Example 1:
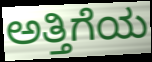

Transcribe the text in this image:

ಅತ್ತಿಗೆಯ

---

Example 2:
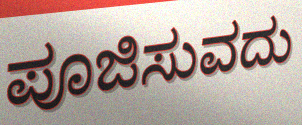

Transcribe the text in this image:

ಪೂಜಿಸುವದು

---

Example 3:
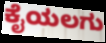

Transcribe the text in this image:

ಕೈಯಲಗು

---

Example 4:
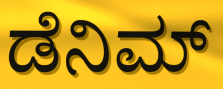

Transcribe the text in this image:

ಡೆನಿಮ್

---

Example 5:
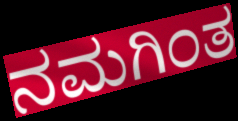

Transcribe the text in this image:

ನಮಗಿಂತ